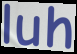
luh